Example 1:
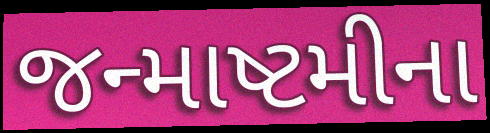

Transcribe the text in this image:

જન્માષ્ટમીના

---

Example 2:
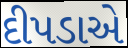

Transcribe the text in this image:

દીપડાએ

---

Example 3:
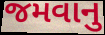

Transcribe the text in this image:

જમવાનુ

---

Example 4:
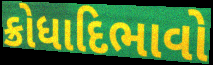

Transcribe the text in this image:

ક્રોધાદિભાવો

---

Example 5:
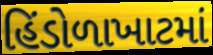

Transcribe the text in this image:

હિંડોળાખાટમાં